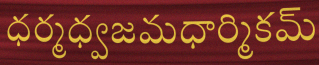
ధర్మధ్వజమధార్మికమ్